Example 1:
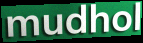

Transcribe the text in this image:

mudhol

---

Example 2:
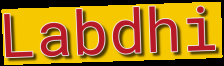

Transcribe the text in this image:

Labdhi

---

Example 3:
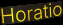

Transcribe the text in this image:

Horatio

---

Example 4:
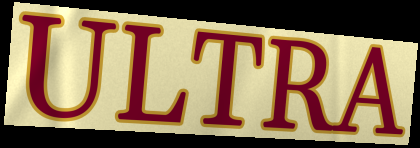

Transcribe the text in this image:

ULTRA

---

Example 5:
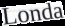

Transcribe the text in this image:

Londa